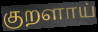
குறளாய்